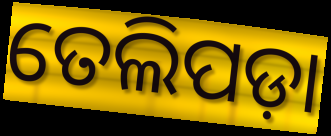
ତେଲିପଡ଼ା